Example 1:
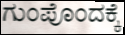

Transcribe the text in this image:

ಗುಂಪೊಂದಕ್ಕೆ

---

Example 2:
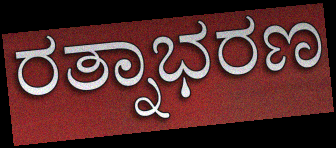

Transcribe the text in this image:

ರತ್ನಾಭರಣ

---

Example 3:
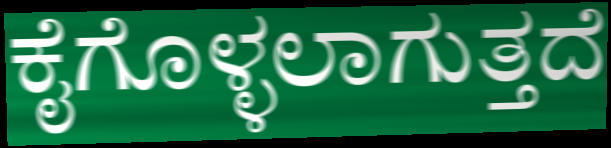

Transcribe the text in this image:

ಕೈಗೊಳ್ಳಲಾಗುತ್ತದೆ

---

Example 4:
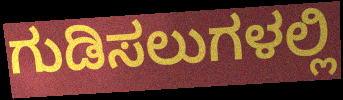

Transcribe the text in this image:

ಗುಡಿಸಲುಗಳಲ್ಲಿ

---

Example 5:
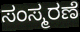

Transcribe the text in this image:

ಸಂಸ್ಮರಣೆ